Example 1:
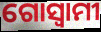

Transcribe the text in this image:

ଗୋସ୍ୱାମୀ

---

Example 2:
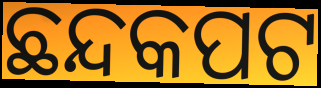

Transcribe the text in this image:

ଛନ୍ଦକପଟ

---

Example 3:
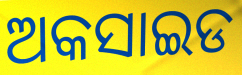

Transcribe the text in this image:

ଅକସାଇଡ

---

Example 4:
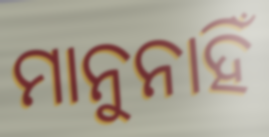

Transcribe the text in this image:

ମାନୁନାହିଁ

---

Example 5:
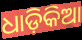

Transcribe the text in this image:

ଧାଡ଼ିକିଆ